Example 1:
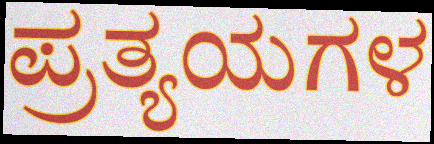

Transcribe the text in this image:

ಪ್ರತ್ಯಯಗಳ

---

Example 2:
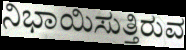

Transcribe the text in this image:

ನಿಭಾಯಿಸುತ್ತಿರುವ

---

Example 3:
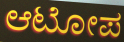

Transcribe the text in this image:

ಆಟೋಪ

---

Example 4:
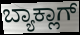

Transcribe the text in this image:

ಬ್ಯಾಕ್ಲಾಗ್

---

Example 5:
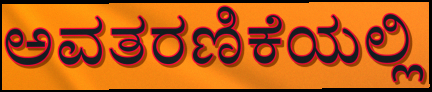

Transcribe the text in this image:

ಅವತರಣಿಕೆಯಲ್ಲಿ